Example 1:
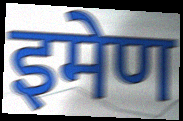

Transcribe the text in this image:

इमेण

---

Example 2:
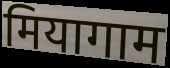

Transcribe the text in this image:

मियागाम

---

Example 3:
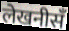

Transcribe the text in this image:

लेखनीसँ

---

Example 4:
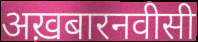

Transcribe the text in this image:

अख़बारनवीसी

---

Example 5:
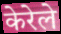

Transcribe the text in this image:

केरेले